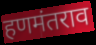
हणमंतराव